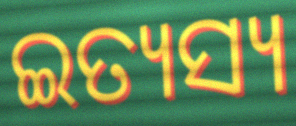
ଇତ୍ୟସ୍ୟ